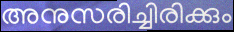
അനുസരിച്ചിരിക്കും